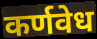
कर्णवेध